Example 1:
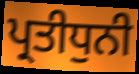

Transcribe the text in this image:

ਪ੍ਰਤੀਧੁਨੀ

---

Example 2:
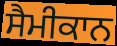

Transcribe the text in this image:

ਸੈਮੀਕਾਨ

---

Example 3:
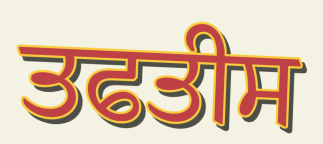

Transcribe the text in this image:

ਤਫਤੀਸ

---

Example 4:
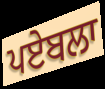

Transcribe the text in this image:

ਪਏਬਲਾ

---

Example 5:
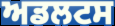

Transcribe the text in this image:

ਅਡਲਟਸ